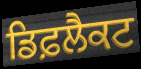
ਡਿਫ਼ਲੈਕਟ